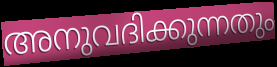
അനുവദിക്കുന്നതും